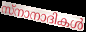
സ്നാനാദികൾ